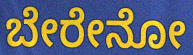
ಬೇರೇನೋ